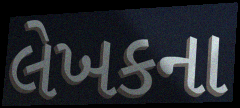
લેખકના